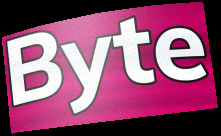
Byte